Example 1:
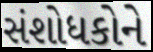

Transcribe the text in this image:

સંશોધકોને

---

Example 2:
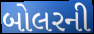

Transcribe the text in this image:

બોલરની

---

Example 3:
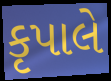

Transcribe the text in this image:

કૃપાલે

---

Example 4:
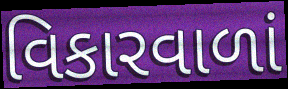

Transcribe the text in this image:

વિકારવાળાં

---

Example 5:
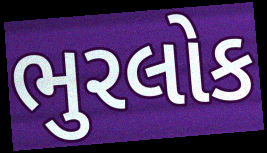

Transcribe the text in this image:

ભુરલોક